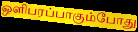
ஒளிபரப்பாகும்போது